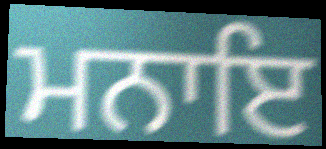
ਮਨਾਇ